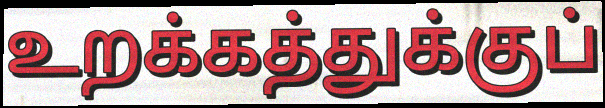
உறக்கத்துக்குப்